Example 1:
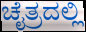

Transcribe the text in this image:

ಚೈತ್ರದಲ್ಲಿ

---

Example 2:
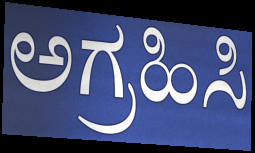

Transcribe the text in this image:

ಅಗ್ರಹಿಸಿ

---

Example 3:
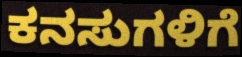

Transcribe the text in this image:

ಕನಸುಗಳಿಗೆ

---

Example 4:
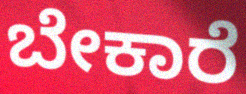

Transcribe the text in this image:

ಬೇಕಾರೆ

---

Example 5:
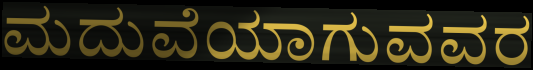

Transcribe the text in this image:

ಮದುವೆಯಾಗುವವರ